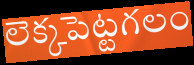
లెక్కపెట్టగలం